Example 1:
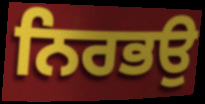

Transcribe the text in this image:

ਨਿਰਭਉ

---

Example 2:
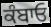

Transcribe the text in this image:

ਕੰਬਾਓ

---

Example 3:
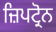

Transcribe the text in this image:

ਜ਼ਿਪਟ੍ਰੋਨ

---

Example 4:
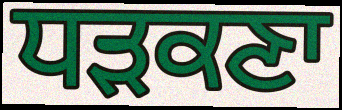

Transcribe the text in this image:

ਧੜਕਣਾ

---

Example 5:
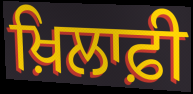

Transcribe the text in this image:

ਖ਼ਿਲਾਫ਼ੀ